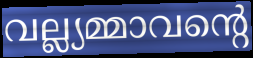
വല്ല്യമ്മാവന്റെ